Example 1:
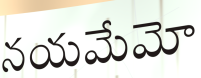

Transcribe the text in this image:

నయమేమో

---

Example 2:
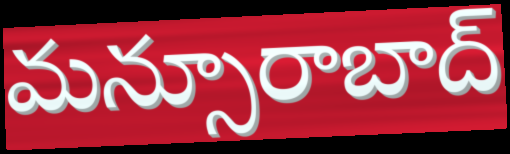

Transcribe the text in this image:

మన్సూరాబాద్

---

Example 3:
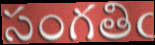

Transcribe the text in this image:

సంగతిఁ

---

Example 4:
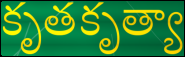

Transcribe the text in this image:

కృతకృత్యా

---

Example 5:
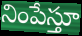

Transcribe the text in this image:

నింపేస్తూ